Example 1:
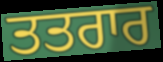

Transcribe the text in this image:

ਤਤਰਾਰ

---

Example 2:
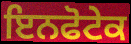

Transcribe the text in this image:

ਇਨਫੋਟੇਕ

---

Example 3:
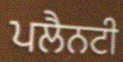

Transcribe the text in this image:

ਪਲੈਨਟੀ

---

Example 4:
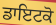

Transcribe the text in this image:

ਡਾਇਟਕੋ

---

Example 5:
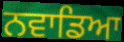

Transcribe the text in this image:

ਨਵਾਡਿਆ